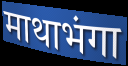
माथाभंगा